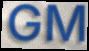
GM